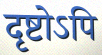
दृष्टोऽपि